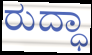
ರುದ್ಧಾ